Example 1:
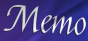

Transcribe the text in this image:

Memo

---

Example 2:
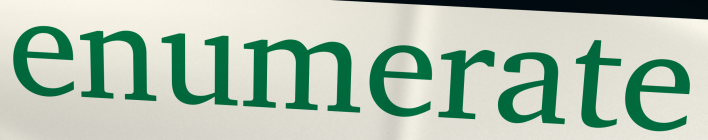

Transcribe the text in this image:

enumerate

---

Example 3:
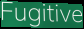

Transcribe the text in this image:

Fugitive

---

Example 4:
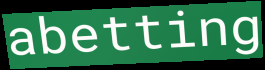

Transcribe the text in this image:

abetting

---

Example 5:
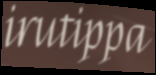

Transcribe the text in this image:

irutippa